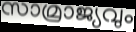
സാമ്രാജ്യവും